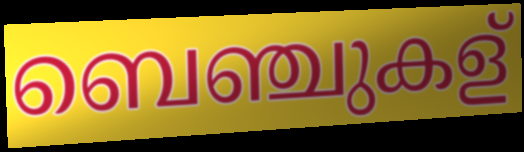
ബെഞ്ചുകള്